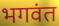
भगवंत